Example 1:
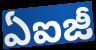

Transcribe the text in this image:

ఏఐజీ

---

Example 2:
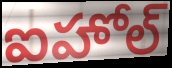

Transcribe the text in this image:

ఐహోల్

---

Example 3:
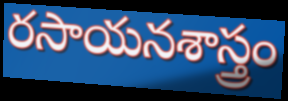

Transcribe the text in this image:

రసాయనశాస్త్రం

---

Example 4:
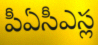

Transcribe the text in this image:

పీఏసీఎస్ల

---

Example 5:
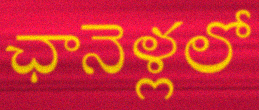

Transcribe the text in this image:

ఛానెళ్లలో